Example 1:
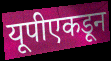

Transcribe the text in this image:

यूपीएकडून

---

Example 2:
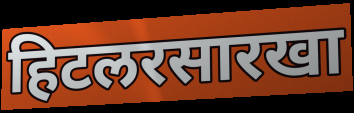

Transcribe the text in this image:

हिटलरसारखा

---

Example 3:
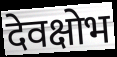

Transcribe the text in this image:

देवक्षोभ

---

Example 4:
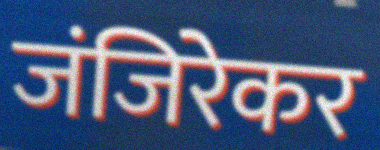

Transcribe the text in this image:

जंजिरेकर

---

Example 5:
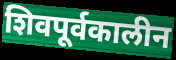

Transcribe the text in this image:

शिवपूर्वकालीन